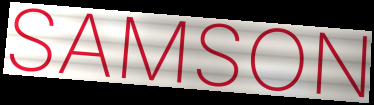
SAMSON